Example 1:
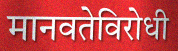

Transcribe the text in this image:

मानवतेविरोधी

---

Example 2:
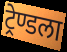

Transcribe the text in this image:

ट्रेण्डला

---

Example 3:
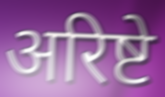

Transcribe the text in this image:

अरिष्टे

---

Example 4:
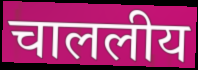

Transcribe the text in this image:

चाललीय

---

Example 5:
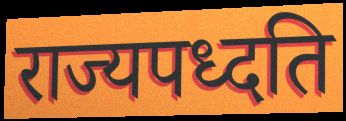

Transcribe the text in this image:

राज्यपध्दति